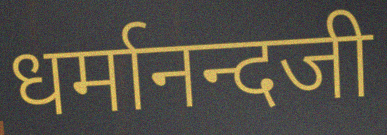
धर्मानन्दजी